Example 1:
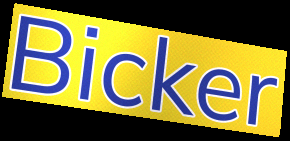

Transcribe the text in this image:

Bicker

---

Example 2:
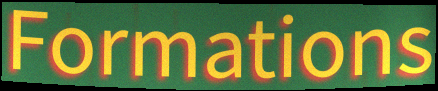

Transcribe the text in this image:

Formations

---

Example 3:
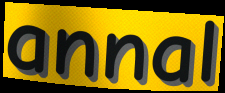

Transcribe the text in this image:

annal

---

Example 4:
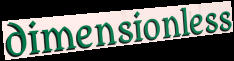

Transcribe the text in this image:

dimensionless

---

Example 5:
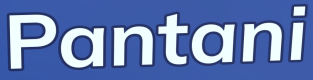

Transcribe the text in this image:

Pantani